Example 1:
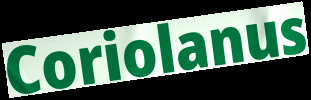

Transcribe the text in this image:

Coriolanus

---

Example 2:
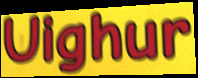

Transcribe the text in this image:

Uighur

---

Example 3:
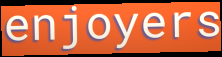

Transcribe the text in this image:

enjoyers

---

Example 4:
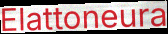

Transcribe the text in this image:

Elattoneura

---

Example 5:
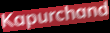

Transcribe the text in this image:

Kapurchand